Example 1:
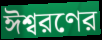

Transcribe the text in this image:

ঈশ্বরণের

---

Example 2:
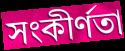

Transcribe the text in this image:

সংকীর্ণতা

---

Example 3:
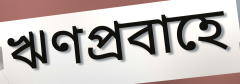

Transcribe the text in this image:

ঋণপ্রবাহে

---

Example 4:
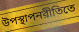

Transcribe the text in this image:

উপস্থাপনরীতিতে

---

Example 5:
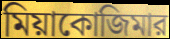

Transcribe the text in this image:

মিয়াকোজিমার